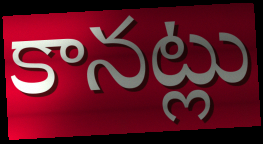
కానట్లు